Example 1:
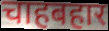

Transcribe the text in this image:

चाहबहार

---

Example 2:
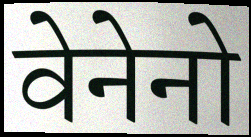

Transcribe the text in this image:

वेनेनो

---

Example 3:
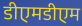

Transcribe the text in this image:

डीएमडीएम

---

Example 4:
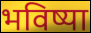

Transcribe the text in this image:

भविष्या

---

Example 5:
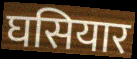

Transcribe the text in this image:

घसियार